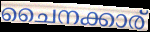
ചൈനക്കാര്